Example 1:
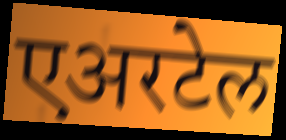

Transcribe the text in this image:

एअरटेल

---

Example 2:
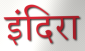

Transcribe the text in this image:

इंदिरा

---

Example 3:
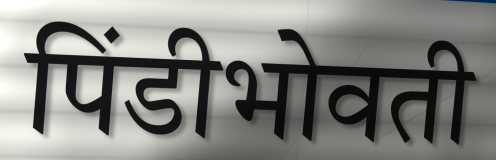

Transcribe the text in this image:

पिंडीभोवती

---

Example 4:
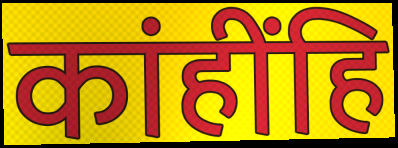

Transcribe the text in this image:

कांहींहि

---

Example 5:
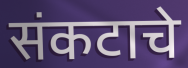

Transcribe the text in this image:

संकटाचे